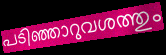
പടിഞ്ഞാറുവശത്തും